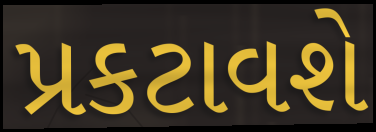
પ્રકટાવશે